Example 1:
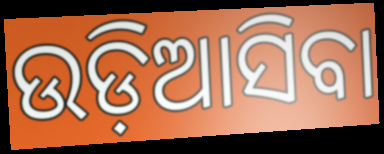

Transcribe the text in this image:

ଉଡ଼ିଆସିବା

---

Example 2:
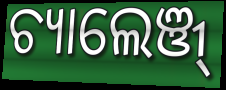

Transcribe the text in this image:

ଚ୍ୟାଲେଞ୍ଜ୍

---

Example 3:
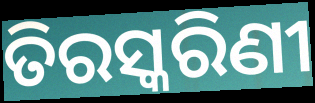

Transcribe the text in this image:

ତିରସ୍କରିଣୀ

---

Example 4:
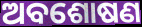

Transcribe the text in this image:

ଅବଶୋଷଣ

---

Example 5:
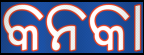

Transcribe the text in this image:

କନକା